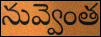
నువ్వెంత